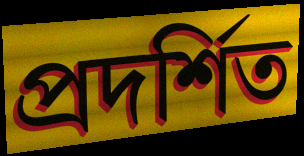
প্ৰদৰ্শিত